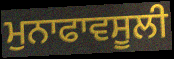
ਮੁਨਾਫਾਵਸੂਲੀ